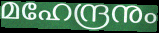
മഹേന്ദ്രനും